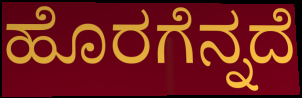
ಹೊರಗೆನ್ನದೆ